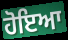
ਹੋਇਆ